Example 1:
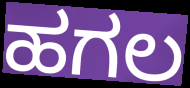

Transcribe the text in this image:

ಹಗಲ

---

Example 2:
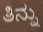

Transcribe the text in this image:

ತಿನ್ನು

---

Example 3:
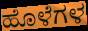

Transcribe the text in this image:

ಹೊಳೆಗಳ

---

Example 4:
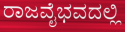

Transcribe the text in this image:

ರಾಜವೈಭವದಲ್ಲಿ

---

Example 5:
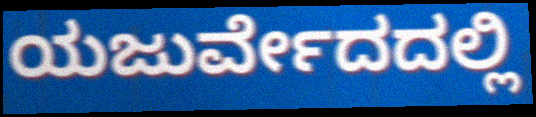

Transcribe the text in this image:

ಯಜುರ್ವೇದದಲ್ಲಿ